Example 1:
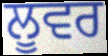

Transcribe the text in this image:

ਲੂਵਰ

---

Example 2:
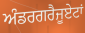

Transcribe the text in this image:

ਅੰਡਰਗਰੈਜੂਏਟਾਂ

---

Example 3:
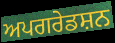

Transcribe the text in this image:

ਅਪਗਰੇਡਸ਼ਨ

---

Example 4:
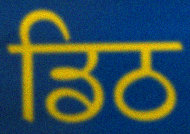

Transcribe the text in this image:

ਡਿਠ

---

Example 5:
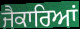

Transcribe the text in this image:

ਜੈਕਾਰਿਆਂ